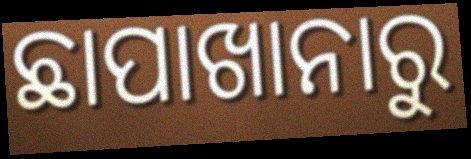
ଛାପାଖାନାରୁ